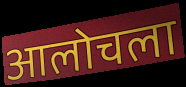
आलोचला